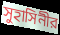
সুহাসিনীর